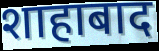
शाहाबाद